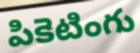
పికెటింగు